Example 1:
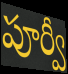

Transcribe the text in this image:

పూర్వీ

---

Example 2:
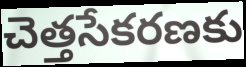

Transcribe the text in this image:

చెత్తసేకరణకు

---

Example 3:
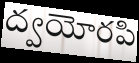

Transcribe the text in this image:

ద్వయోరపి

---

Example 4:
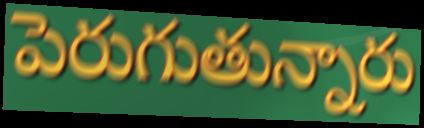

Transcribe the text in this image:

పెరుగుతున్నారు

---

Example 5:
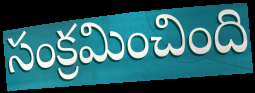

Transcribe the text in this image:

సంక్రమించింది